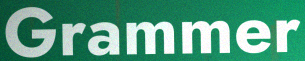
Grammer